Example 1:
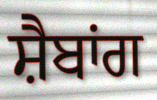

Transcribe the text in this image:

ਸ਼ੈਬਾਂਗ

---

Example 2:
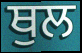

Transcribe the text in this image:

ਥੁਲ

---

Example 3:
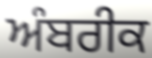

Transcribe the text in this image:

ਅੰਬਰੀਕ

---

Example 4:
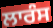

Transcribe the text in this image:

ਲਾਰੰਸ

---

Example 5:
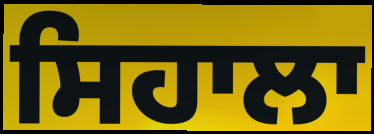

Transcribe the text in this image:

ਸਿਹਾਲਾ